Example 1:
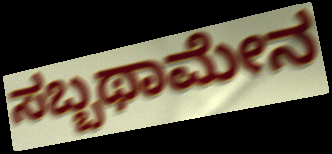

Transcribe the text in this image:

ಸಬ್ಬಥಾಮೇನ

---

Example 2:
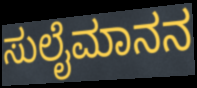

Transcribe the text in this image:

ಸುಲೈಮಾನನ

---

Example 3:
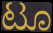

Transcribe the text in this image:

ಟೂ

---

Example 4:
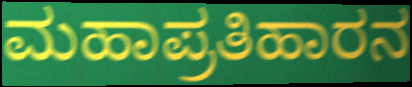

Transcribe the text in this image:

ಮಹಾಪ್ರತಿಹಾರನ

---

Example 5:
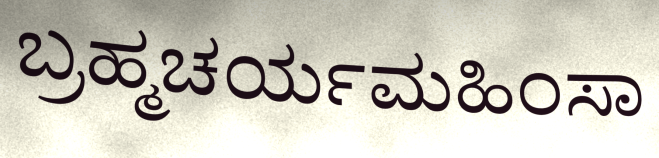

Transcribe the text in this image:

ಬ್ರಹ್ಮಚರ್ಯಮಹಿಂಸಾ